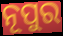
ନୂପୁର